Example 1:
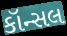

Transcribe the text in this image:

કૉન્સલ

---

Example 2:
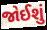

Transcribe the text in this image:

જોઈશું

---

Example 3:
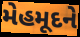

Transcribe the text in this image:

મેહમૂદને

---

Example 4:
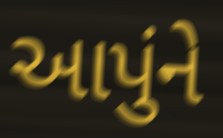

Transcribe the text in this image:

આપુંને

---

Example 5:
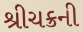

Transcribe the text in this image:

શ્રીચક્રની